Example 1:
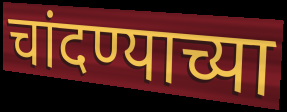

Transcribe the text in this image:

चांदण्याच्या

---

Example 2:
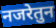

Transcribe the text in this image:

नजरेतुन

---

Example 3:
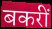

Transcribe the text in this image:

बकरीं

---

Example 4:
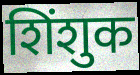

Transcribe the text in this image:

शिंशुक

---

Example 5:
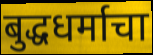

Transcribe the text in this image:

बुद्धधर्माचा